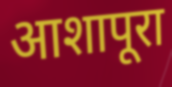
आशापूरा